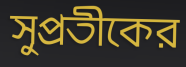
সুপ্রতীকের